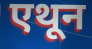
एथून